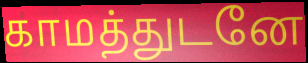
காமத்துடனே